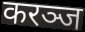
करञ्ज